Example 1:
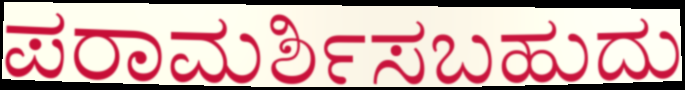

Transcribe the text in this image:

ಪರಾಮರ್ಶಿಸಬಹುದು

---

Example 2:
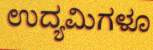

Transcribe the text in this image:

ಉದ್ಯಮಿಗಳೂ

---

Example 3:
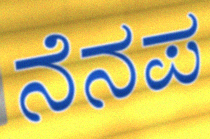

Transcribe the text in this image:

ನೆನಪ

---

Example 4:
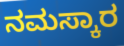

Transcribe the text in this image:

ನಮಸ್ಕಾರ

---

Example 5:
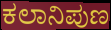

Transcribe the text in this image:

ಕಲಾನಿಪುಣ